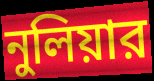
নুলিয়ার